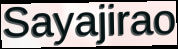
Sayajirao